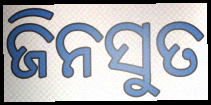
ଜିନସୁତ